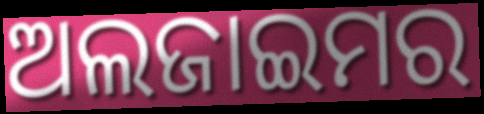
ଅଲଜାଇମର